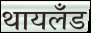
थायलँड